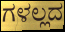
ಗಳಲ್ಲದ